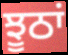
ਝੂਠਾਂ